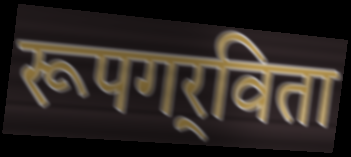
रूपगर्विता